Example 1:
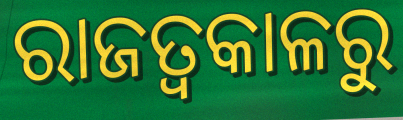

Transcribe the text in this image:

ରାଜତ୍ଵକାଳରୁ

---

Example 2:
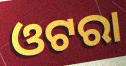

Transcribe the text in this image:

ଓଟରା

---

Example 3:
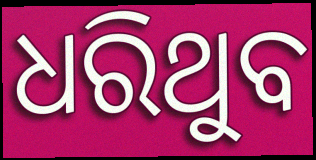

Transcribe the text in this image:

ଧରିଥୁବ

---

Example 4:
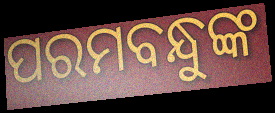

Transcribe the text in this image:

ପରମବନ୍ଧୁଙ୍କ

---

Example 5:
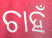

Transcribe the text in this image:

ଚାହଁ